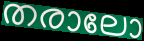
തരാലോ